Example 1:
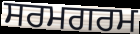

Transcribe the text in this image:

ਸਰਮਗਰਮ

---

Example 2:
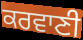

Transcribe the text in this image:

ਕਰਵਾਣੀ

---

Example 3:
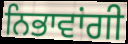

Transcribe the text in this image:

ਨਿਭਾਵਾਂਗੀ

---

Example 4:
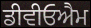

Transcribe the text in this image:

ਡੀਵੀਓਐਮ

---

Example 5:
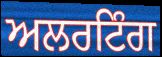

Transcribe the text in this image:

ਅਲਰਟਿੰਗ